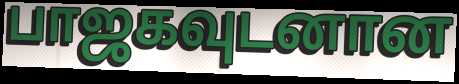
பாஜகவுடனான